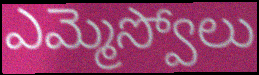
ఎమ్మెస్వోలు